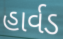
હાર્વડ